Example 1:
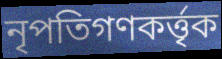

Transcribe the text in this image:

নৃপতিগণকর্ত্তৃক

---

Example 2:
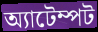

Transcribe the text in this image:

অ্যাটেম্পট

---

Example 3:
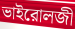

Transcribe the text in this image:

ভাইরোলজী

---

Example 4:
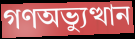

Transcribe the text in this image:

গণঅভ্যুত্থান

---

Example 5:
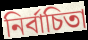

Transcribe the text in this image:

নির্বাচিতা